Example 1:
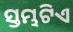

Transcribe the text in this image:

ସ୍ତମ୍ଭଟିଏ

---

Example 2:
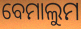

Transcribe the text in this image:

ବେମାଲୁମ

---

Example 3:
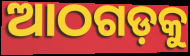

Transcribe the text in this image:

ଆଠଗଡ଼କୁ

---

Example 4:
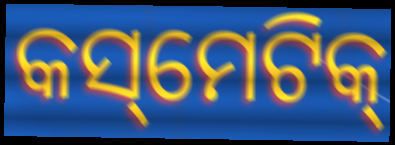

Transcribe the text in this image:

କସ୍‌ମେଟିକ୍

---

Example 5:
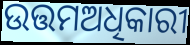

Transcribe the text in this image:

ଉତ୍ତମଅଧିକାରୀ